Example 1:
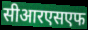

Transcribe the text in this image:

सीआरएसएफ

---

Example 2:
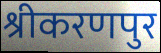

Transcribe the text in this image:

श्रीकरणपुर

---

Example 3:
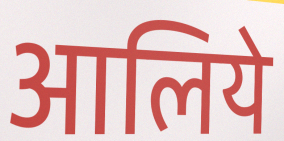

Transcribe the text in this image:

आलिये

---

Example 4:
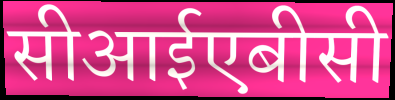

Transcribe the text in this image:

सीआईएबीसी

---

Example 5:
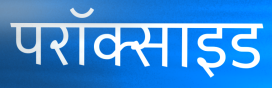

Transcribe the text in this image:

परॉक्साइड